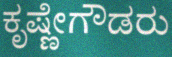
ಕೃಷ್ಣೇಗೌಡರು